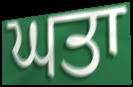
ਘਤਾ